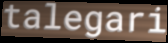
talegari